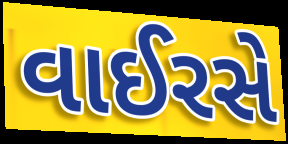
વાઈરસે